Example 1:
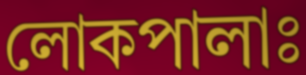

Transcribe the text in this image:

লোকপালাঃ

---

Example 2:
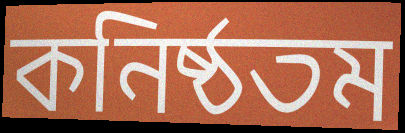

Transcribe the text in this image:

কনিষ্ঠতম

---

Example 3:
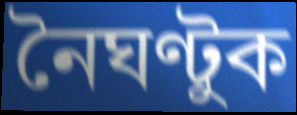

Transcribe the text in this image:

নৈঘণ্টুক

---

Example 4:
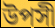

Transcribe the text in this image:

উপসী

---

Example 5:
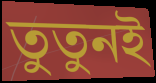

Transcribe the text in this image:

তুতুনই